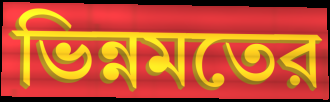
ভিন্নমতের